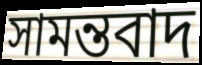
সামন্তবাদ